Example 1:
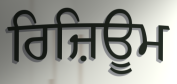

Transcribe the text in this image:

ਰਿਜ਼ਿਊਮ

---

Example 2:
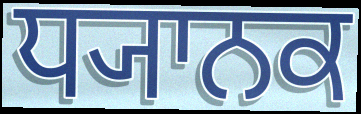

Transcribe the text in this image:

ਧ੍ਯਾਨਕ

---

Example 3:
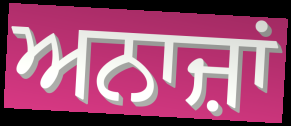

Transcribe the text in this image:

ਅਨਾਜ਼ਾਂ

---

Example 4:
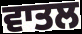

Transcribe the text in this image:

ਵਾਤਲ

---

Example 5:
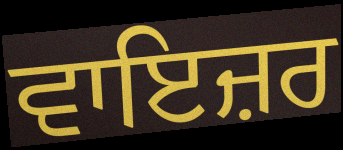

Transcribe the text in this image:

ਵਾਇਜ਼ਰ